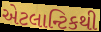
એટલાન્ટિકથી